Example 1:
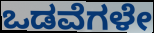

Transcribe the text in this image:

ಒಡವೆಗಳೇ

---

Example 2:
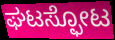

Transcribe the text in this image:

ಘಟಸ್ಫೋಟ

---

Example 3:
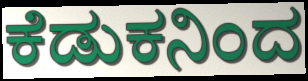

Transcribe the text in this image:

ಕೆಡುಕನಿಂದ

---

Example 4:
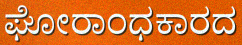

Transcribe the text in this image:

ಘೋರಾಂಧಕಾರದ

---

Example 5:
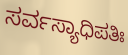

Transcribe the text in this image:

ಸರ್ವಸ್ಯಾಧಿಪತಿಃ